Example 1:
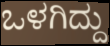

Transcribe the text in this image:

ಒಳಗಿದ್ದು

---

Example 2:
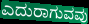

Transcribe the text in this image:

ಎದುರಾಗುವವು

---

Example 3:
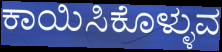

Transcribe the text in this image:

ಕಾಯಿಸಿಕೊಳ್ಳುವ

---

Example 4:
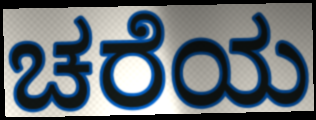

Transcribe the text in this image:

ಚರೆಯ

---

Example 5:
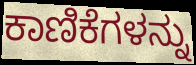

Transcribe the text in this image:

ಕಾಣಿಕೆಗಳನ್ನು